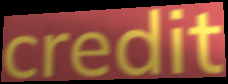
credit